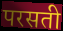
परसती